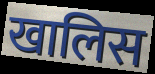
खालिस